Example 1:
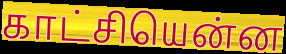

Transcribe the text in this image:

காட்சியென்ன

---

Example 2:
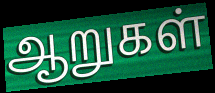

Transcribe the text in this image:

ஆறுகள்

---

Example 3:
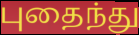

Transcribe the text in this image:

புதைந்து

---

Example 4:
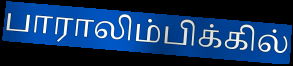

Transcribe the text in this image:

பாராலிம்பிக்கில்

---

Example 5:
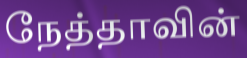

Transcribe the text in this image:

நேத்தாவின்